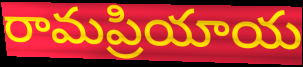
రామప్రియాయ